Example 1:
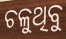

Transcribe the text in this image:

ଚଳୁଥିବୁ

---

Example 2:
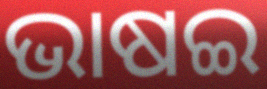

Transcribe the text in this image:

ଭାଷଇ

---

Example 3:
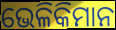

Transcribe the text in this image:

ଭେଳିକିମାନ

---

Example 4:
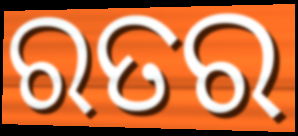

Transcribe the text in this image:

ରତର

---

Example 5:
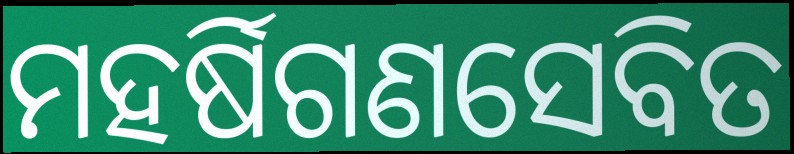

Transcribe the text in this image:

ମହର୍ଷିଗଣସେବିତ